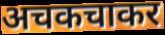
अचकचाकर